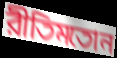
রীতিমতোন